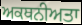
ਅਕਥਨੀਅਤਾ